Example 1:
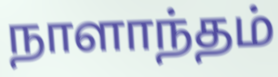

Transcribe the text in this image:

நாளாந்தம்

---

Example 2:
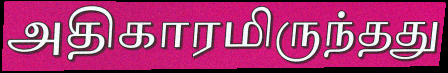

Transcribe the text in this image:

அதிகாரமிருந்தது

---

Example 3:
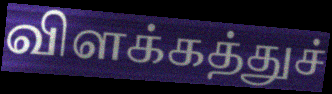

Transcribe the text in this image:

விளக்கத்துச்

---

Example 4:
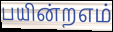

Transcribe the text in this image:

பயின்றஎம்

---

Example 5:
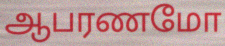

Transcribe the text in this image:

ஆபரணமோ